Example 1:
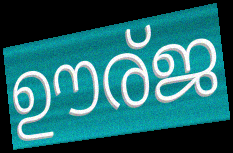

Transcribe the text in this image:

ഊര്ജ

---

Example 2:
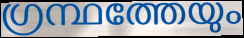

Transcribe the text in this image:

ഗ്രന്ഥത്തേയും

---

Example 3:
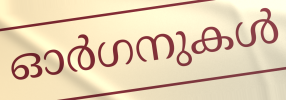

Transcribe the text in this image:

ഓർഗനുകൾ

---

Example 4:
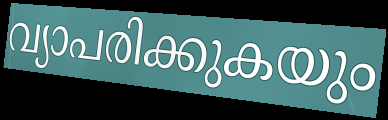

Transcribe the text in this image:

വ്യാപരിക്കുകയും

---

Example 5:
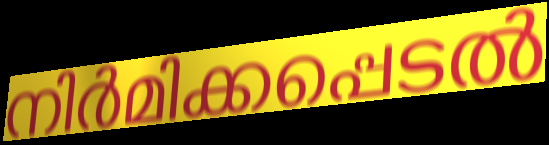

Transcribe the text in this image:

നിർമിക്കപ്പെടൽ